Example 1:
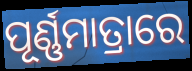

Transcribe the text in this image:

ପୂର୍ଣ୍ଣମାତ୍ରାରେ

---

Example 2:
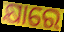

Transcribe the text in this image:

କ୍ଷାରେ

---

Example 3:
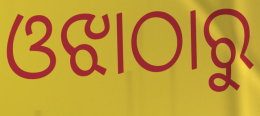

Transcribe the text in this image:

ଓଝାଠାରୁ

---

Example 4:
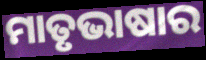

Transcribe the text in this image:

ମାତୃଭାଷାର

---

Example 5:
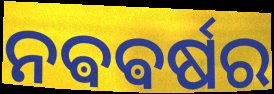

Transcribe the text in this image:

ନଵଵର୍ଷର